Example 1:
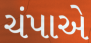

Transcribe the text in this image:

ચંપાએ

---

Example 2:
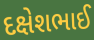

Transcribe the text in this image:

દક્ષેશભાઈ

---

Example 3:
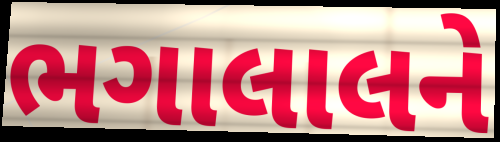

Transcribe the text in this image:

ભગાલાલને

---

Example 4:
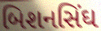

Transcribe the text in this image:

બિશનસિંઘ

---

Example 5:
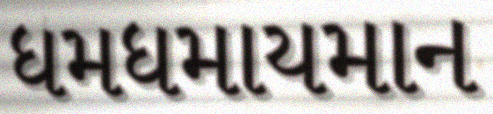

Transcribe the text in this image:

ધમધમાયમાન